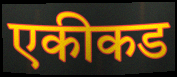
एकीकड